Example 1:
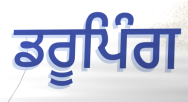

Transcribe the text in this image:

ਡਰੂਪਿੰਗ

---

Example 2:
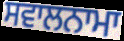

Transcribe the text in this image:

ਸਵਾਲਨਾਮਾ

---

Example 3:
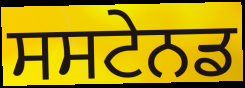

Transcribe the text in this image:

ਸਸਟੇਨਡ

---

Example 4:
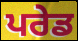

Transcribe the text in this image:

ਪਰੇਡ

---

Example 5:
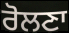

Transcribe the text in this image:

ਰੋਲਣਾ